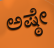
ಅಷ್ಠೇ